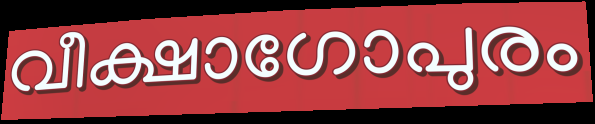
വീക്ഷാഗോപുരം